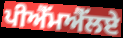
ਪੀਐੱਮਐੱਲਏ